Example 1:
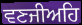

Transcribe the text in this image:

ਵਣਜੀਅਹਿ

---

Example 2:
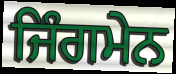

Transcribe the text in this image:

ਜਿੰਗਮੇਨ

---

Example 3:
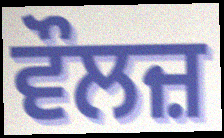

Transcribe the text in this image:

ਵੌਲਜ਼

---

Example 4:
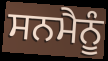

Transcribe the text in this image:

ਸਨਮੈਨੂੰ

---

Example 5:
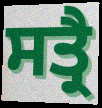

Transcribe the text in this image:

ਸਤ੍ਰੈ